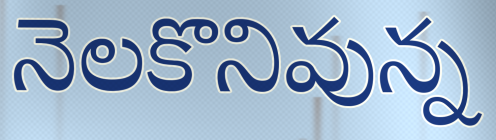
నెలకొనివున్న